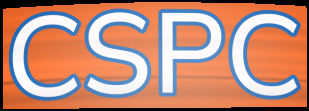
CSPC